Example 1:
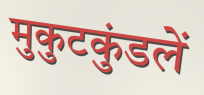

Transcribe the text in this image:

मुकुटकुंडलें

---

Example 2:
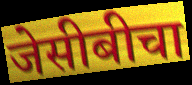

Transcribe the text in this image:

जेसीबीचा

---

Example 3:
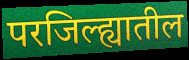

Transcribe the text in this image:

परजिल्ह्यातील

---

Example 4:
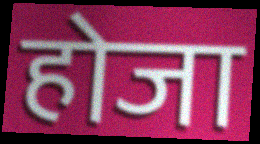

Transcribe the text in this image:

होजा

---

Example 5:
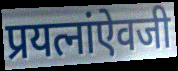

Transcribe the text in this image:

प्रयत्नांऐवजी